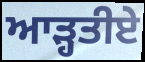
ਆੜ੍ਹਤੀਏ